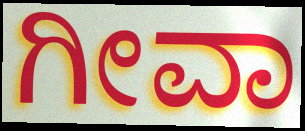
ಗೀವಾ